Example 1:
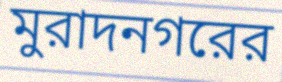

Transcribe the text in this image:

মুরাদনগরের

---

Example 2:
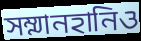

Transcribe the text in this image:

সম্মানহানিও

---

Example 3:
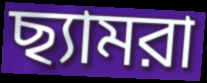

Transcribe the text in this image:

ছ্যামরা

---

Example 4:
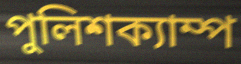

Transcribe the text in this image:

পুলিশক্যাম্প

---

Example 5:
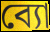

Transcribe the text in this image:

ব্যো